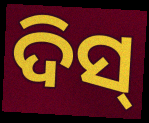
ଦିସ୍